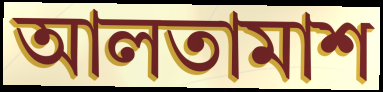
আলতামাশ